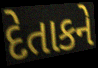
દેતાકને